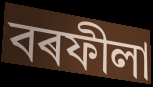
বৰফীলা